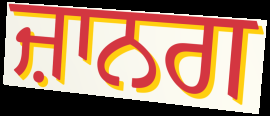
ਜ਼ਾਨਗ